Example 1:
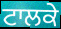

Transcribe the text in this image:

ਟਾਲਕੇ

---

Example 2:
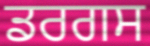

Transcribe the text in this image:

ਡਰਗਸ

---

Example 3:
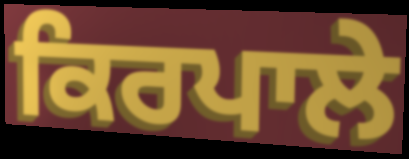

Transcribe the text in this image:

ਕਿਰਪਾਲੇ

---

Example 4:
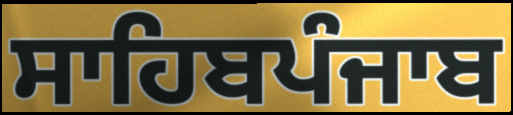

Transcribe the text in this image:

ਸਾਹਿਬਪੰਜਾਬ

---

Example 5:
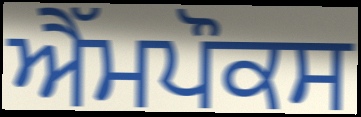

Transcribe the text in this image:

ਐੱਮਪੌਕਸ